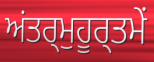
ਅਂਤਰ੍ਮੁਹੂਰ੍ਤਮੇਂ